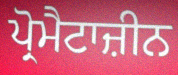
ਪ੍ਰੋਮੈਟਾਜ਼ੀਨ